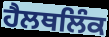
ਹੈਲਥਲਿੰਕ